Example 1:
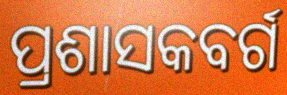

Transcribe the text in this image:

ପ୍ରଶାସକବର୍ଗ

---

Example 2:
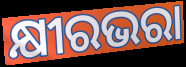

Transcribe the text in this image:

କ୍ଷୀରଭରା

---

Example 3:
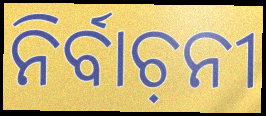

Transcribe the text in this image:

ନିର୍ବାଚ଼ନୀ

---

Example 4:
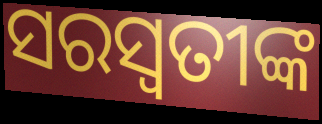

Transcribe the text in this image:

ସରସ୍ବତୀଙ୍କ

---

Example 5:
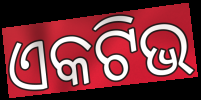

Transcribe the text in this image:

ଏକଟିଭ